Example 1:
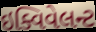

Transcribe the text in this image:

ઇક્વિવેલન્ટ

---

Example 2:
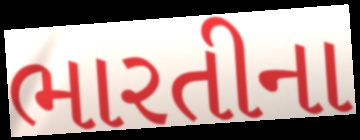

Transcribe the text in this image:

ભારતીના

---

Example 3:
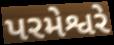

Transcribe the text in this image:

પરમેશ્વરે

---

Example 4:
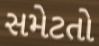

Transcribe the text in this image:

સમેટતો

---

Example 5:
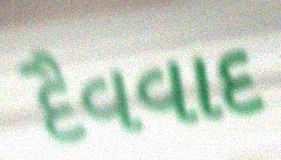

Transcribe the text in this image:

દૈવવાદ